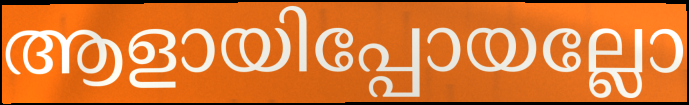
ആളായിപ്പോയല്ലോ